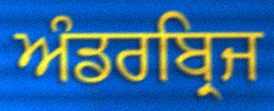
ਅੰਡਰਬ੍ਰਿਜ